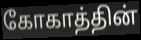
கோகாத்தின்